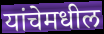
यांचेमधील